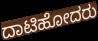
ದಾಟಿಹೋದರು